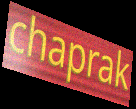
chaprak